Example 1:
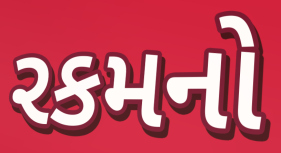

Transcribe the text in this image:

રકમનો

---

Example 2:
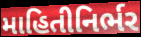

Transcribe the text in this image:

માહિતીનિર્ભર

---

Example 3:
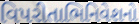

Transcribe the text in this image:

વિપરીતાભિનિવેશનો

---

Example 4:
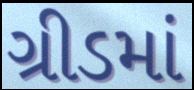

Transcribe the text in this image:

ગ્રીડમાં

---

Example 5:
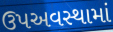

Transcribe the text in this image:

ઉપઅવસ્થામાં